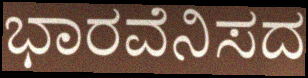
ಭಾರವೆನಿಸದ